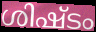
ശിഷ്ടം